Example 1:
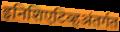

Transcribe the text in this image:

इनिशिएटिव्हअंतर्गत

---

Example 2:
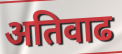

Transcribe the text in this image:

अतिवाढ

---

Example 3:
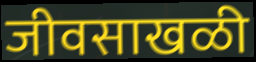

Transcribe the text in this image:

जीवसाखळी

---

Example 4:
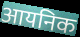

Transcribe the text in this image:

आयनिक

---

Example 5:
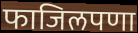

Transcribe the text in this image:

फाजिलपणा